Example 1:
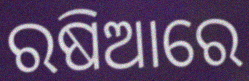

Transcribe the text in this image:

ରଷିଆରେ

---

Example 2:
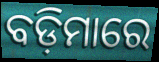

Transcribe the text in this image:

ବଡ଼ିମାରେ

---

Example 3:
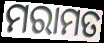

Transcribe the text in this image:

ମରାମତ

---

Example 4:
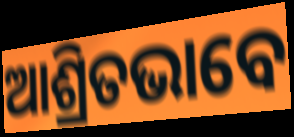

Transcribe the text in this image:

ଆଶ୍ରିତଭାବେ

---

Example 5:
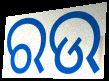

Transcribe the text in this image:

ରଉ